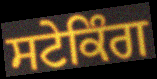
ਸਟੇਕਿੰਗ